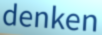
denken